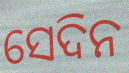
ସେଦିନ